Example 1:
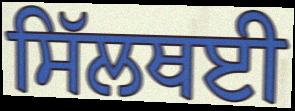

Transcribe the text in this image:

ਸਿੱਲਥਈ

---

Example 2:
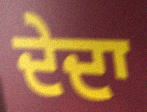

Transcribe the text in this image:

ਦੇਦਾ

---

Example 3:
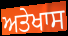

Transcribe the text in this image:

ਅਤੇਖਾਸ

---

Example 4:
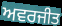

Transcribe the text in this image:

ਅਵਰਜੀਤ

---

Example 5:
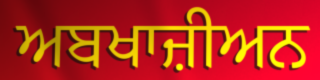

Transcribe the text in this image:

ਅਬਖਾਜ਼ੀਅਨ